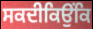
ਸਕਦੀਕਿਉਂਕਿ